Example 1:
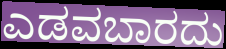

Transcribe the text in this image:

ಎಡವಬಾರದು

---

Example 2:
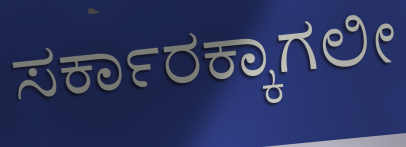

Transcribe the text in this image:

ಸರ್ಕಾರಕ್ಕಾಗಲೀ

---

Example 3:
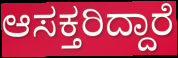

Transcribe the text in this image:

ಆಸಕ್ತರಿದ್ದಾರೆ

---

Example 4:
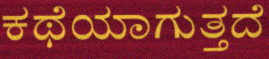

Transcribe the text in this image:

ಕಥೆಯಾಗುತ್ತದೆ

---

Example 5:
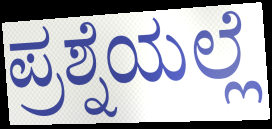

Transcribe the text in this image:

ಪ್ರಶ್ನೆಯಲ್ಲೆ